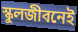
স্কুলজীবনেই